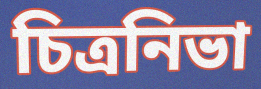
চিত্রনিভা